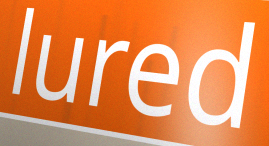
lured